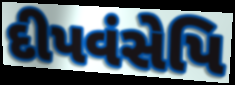
દીપવંસેપિ